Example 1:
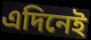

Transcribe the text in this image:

এদিনেই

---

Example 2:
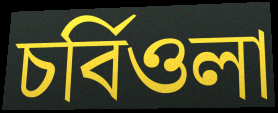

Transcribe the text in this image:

চর্বিওলা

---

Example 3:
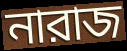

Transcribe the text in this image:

নারাজ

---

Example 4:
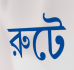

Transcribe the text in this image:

রুটে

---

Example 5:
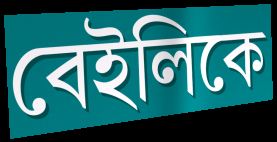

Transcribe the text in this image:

বেইলিকে